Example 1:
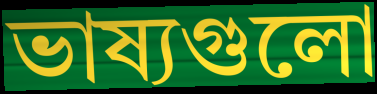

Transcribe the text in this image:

ভাষ্যগুলো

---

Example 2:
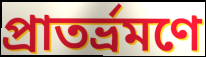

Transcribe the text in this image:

প্রাতর্ভ্রমণে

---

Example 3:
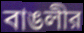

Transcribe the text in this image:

বাঙলীর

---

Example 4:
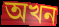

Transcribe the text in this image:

অখন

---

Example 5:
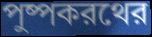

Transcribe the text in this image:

পুষ্পকরথের